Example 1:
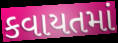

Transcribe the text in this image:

કવાયતમાં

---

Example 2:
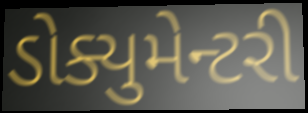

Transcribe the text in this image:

ડોક્યુમેન્ટરી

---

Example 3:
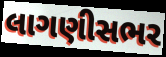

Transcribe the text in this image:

લાગણીસભર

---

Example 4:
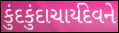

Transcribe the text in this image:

કુંદકુંદાચાર્યદેવને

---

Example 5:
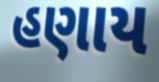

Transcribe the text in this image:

હણાય